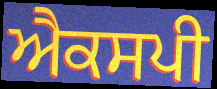
ਐਕਸਪੀ